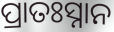
ପ୍ରାତଃସ୍ନାନ